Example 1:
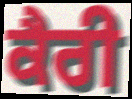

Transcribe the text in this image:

ਕੈਰੀ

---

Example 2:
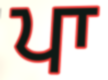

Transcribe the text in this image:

ਪਾ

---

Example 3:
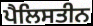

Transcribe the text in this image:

ਪੈਲਿਸਤੀਨ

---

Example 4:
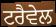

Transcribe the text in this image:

ਟਰੈਵੇਲ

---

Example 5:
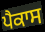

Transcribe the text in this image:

ਪੈਕਾਸ